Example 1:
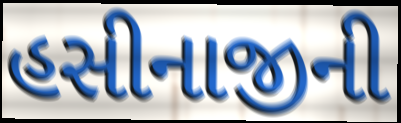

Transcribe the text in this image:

હસીનાજીની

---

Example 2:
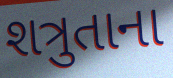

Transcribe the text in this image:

શત્રુતાના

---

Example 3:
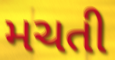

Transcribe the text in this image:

મચતી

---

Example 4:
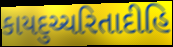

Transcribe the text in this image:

કાયદુચ્ચરિતાદીહિ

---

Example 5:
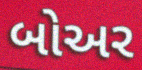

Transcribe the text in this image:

બોઅર